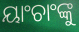
ୟାଂଚାଂଙ୍କୁ